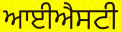
ਆਈਐਸਟੀ